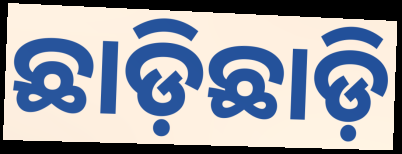
ଛାଡ଼ିଛାଡ଼ି